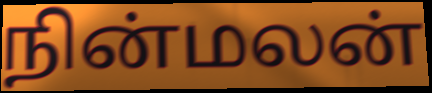
நின்மலன்